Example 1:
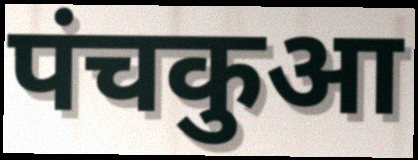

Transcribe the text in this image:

पंचकुआ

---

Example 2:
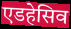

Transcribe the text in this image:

एडहेसिव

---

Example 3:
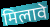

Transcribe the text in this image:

मिलावे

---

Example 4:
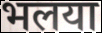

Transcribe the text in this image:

भलया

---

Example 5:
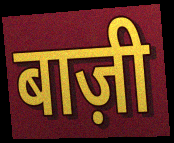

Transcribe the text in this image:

बाज़ी